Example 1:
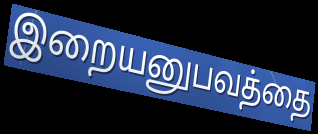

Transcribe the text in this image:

இறையனுபவத்தை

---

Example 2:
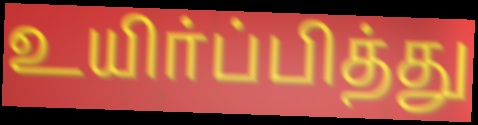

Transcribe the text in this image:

உயிர்ப்பித்து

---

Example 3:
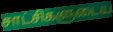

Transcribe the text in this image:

சாட்சிகளுடைய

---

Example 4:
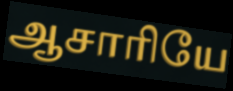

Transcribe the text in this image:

ஆசாரியே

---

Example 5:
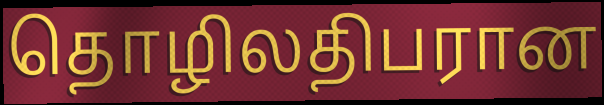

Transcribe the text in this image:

தொழிலதிபரான